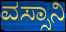
ವಸ್ಸಾನಿ